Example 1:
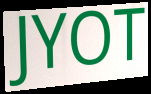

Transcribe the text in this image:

JYOT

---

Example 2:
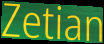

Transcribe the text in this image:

Zetian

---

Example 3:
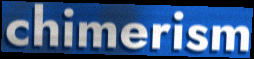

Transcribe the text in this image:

chimerism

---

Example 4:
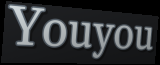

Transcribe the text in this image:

Youyou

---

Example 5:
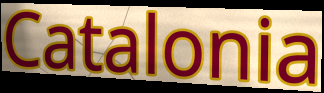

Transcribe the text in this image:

Catalonia